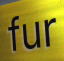
fur